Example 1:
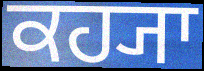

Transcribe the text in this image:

ਕਹ੍ਯਾ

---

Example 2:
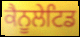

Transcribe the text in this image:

ਕੈਨੂਲੇਟਿਡ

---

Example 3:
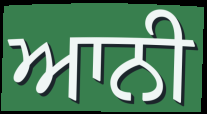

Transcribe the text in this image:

ਆਨੀ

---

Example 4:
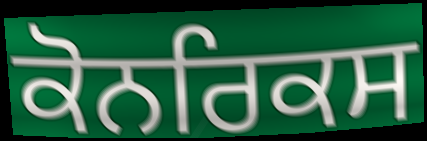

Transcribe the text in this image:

ਕੋਨਰਿਕਸ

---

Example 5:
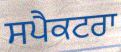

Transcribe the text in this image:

ਸਪੈਕਟਰਾ